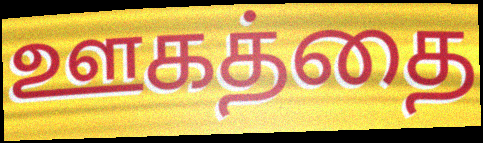
ஊகத்தை